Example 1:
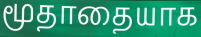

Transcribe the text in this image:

மூதாதையாக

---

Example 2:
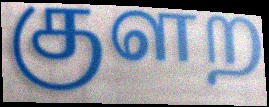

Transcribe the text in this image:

குளற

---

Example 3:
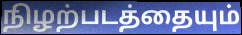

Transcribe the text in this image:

நிழற்படத்தையும்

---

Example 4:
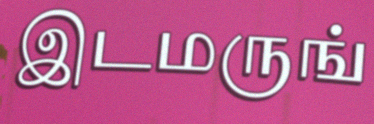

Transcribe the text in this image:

இடமருங்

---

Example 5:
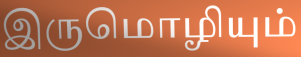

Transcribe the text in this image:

இருமொழியும்